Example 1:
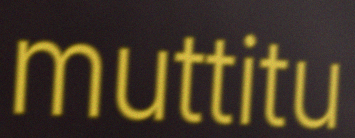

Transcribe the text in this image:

muttitu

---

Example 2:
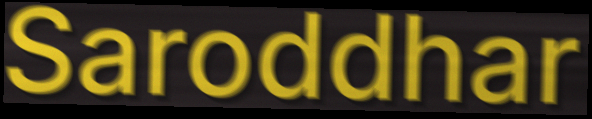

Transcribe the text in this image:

Saroddhar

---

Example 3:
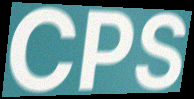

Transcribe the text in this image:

CPS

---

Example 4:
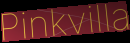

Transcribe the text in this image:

Pinkvilla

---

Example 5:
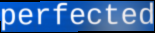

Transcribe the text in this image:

perfected